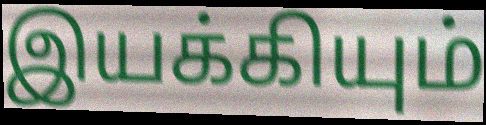
இயக்கியும்